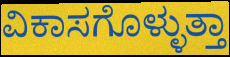
ವಿಕಾಸಗೊಳ್ಳುತ್ತಾ